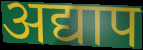
अद्याप